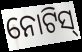
ନୋଟିସ୍